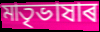
মাতৃভাষাৰ